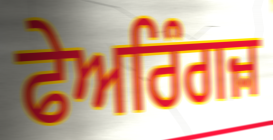
ਫੇਅਰਿੰਗਜ਼